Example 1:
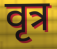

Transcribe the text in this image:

वृत्र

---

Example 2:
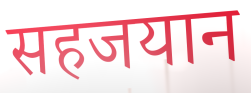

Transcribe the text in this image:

सहजयान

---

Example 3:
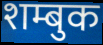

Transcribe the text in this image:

शम्बुक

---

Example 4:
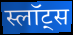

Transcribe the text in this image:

स्लॉट्स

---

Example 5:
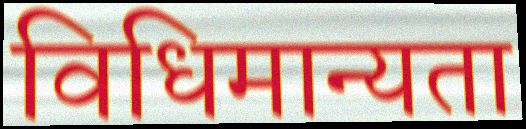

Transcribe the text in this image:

विधिमान्यता